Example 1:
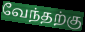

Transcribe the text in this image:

வேந்தற்கு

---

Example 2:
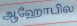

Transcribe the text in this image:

ஆஹோபில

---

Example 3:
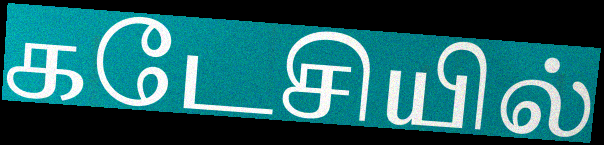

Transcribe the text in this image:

கடேசியில்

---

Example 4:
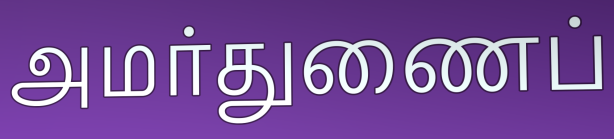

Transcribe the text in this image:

அமர்துணைப்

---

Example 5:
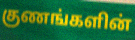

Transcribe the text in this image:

குணங்களின்